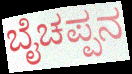
ಬೈಚಪ್ಪನ